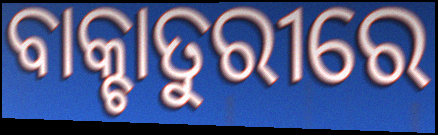
ବାକ୍ଚାତୁରୀରେ